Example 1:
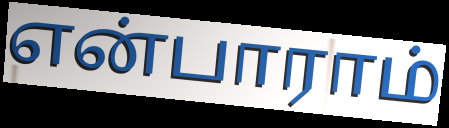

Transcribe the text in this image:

என்பாராம்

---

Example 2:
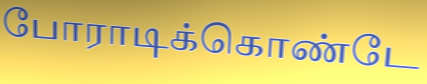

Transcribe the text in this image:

போராடிக்கொண்டே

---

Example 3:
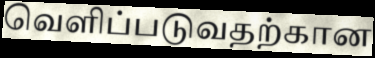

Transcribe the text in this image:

வெளிப்படுவதற்கான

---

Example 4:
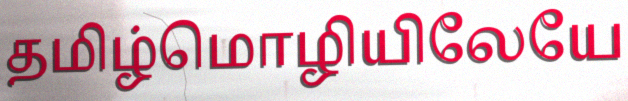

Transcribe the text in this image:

தமிழ்மொழியிலேயே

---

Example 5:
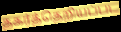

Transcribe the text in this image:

தகர்த்தெறியப்பட